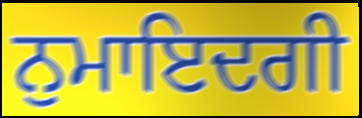
ਨੁਮਾਇਦਗੀ